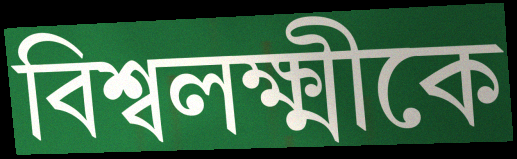
বিশ্বলক্ষ্মীকে